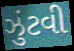
ઝુંટવી